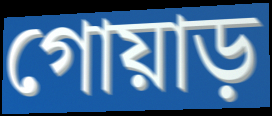
গোয়াড়